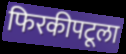
फिरकीपटूला